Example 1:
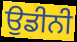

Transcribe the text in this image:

ਉਡੀਨੀ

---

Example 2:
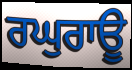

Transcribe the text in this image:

ਰਘੁਰਾਊ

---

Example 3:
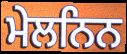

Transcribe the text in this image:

ਮੇਲਨਿਨ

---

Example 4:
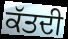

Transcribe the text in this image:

ਕੱਤਦੀ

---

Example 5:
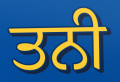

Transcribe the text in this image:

ਤਨੀ